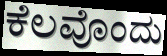
ಕೆಲವೊಂದು